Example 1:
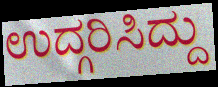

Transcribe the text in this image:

ಉದ್ಗರಿಸಿದ್ದು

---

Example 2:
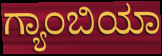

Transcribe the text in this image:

ಗ್ಯಾಂಬಿಯಾ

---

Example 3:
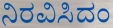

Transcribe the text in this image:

ನಿರವಿಸಿದಂ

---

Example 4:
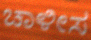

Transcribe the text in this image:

ಚಾಳೀಸ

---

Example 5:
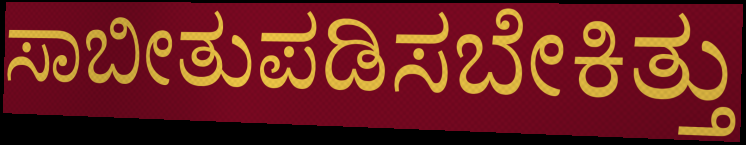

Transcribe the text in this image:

ಸಾಬೀತುಪಡಿಸಬೇಕಿತ್ತು